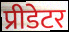
प्रीडेटर